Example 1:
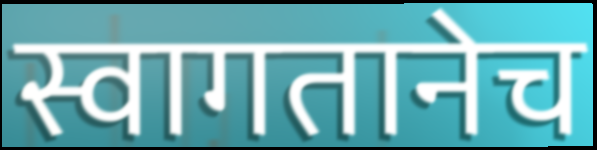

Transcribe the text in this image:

स्वागतानेच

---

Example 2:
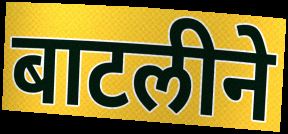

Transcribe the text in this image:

बाटलीने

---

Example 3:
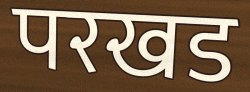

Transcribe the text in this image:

परखड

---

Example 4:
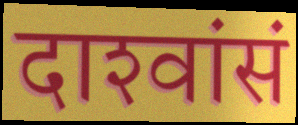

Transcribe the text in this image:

दाश्वांसं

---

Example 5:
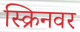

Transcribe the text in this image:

स्क्रिनवर